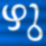
ഴു